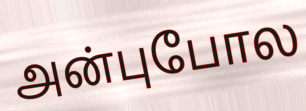
அன்புபோல